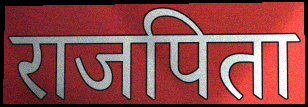
राजपिता